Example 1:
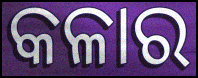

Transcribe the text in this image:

କଳାର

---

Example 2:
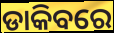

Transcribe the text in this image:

ଡାକିବରେ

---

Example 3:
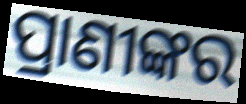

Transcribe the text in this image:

ପ୍ରାଣୀଙ୍କର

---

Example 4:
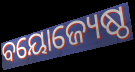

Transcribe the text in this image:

ବୟୋଜ୍ୟେଷ୍ଠ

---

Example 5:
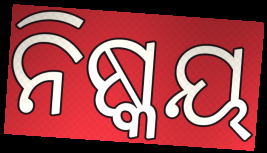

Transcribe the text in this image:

ନିଷ୍କୟ